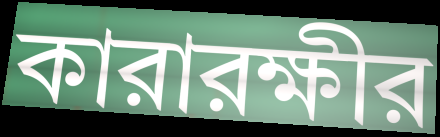
কারারক্ষীর